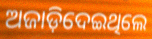
ଅଜାଡ଼ିଦେଇଥିଲେ